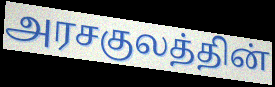
அரசகுலத்தின்